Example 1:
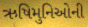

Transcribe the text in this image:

ઋષિમુનિઓની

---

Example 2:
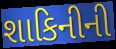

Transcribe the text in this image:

શાકિનીની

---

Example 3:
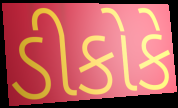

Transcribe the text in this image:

ડીકોકે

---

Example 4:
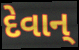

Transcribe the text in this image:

દેવાન્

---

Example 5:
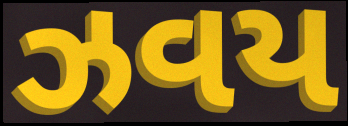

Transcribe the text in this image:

ઝવય